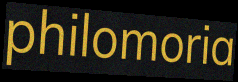
philomoria